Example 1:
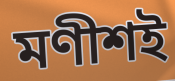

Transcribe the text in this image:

মণীশই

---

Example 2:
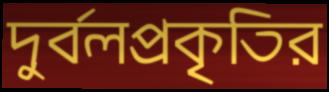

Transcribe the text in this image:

দুর্বলপ্রকৃতির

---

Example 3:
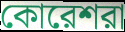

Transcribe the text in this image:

কোরেশরা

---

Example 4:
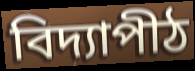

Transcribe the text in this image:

বিদ্যাপীঠ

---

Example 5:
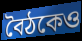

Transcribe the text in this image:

বৈঠকেও